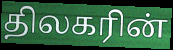
திலகரின்